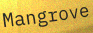
Mangrove